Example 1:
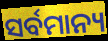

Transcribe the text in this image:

ସର୍ବମାନ୍ୟ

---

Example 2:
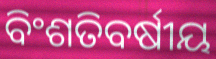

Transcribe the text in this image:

ବିଂଶତିବର୍ଷୀୟ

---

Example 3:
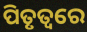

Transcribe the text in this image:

ପିତୃତ୍ୱରେ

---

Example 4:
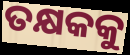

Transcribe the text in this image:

ତକ୍ଷକକୁ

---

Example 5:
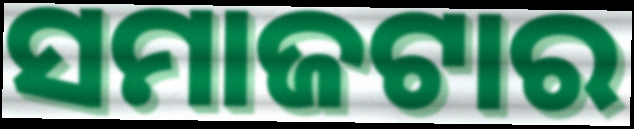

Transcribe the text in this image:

ସମାଜଟାର